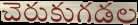
చెరుకుగడల